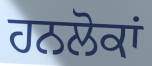
ਹਨਲੋਕਾਂ